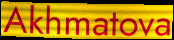
Akhmatova